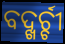
ବଦ୍ଖର୍ଚ୍ଚୀ